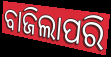
ବାଜିଲାପରି